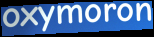
oxymoron